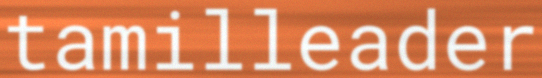
tamilleader